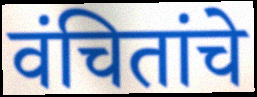
वंचितांचे